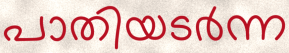
പാതിയടർന്ന